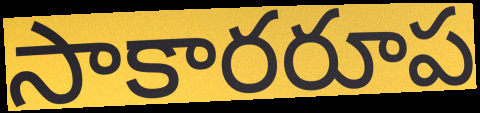
సాకారరూప